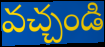
వచ్చండి